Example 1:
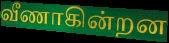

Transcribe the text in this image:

வீணாகின்றன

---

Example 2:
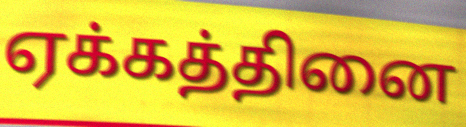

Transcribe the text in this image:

ஏக்கத்தினை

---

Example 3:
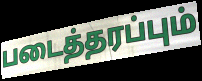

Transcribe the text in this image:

படைத்தரப்பும்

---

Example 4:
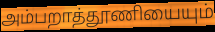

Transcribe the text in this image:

அம்பறாத்தூணியையும்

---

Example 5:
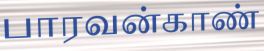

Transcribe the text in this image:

பாரவன்காண்